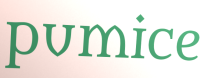
pumice